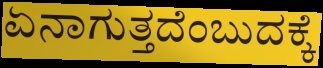
ಏನಾಗುತ್ತದೆಂಬುದಕ್ಕೆ